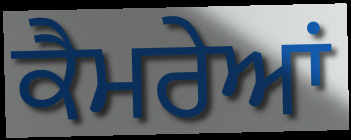
ਕੈਮਰੇਆਂ